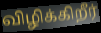
விழிக்கிறீர்